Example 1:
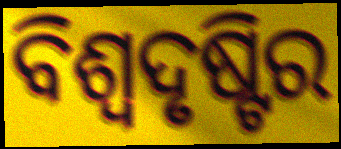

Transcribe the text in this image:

ବିଶ୍ୱଦୃଷ୍ଟିର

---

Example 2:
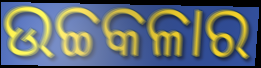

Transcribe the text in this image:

ଉଚ୍ଚକଳାର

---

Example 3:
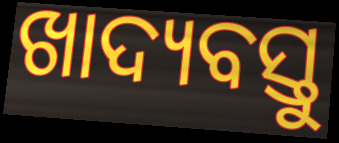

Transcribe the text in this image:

ଖାଦ୍ୟବସ୍ତୁ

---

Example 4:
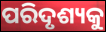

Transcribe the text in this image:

ପରିଦୃଶ୍ୟକୁ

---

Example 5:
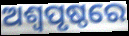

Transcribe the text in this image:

ଅଶ୍ଵପୃଷ୍ଠରେ